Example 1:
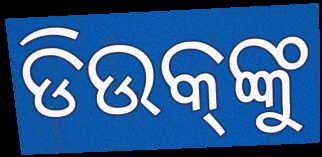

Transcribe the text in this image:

ଡିଉକ୍‌ଙ୍କୁ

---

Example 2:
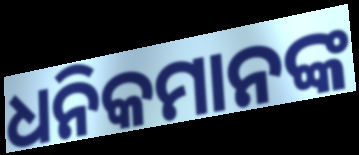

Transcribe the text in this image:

ଧନିକମାନଙ୍କ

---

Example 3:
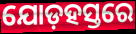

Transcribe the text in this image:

ଯୋଡ଼ହସ୍ତରେ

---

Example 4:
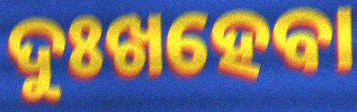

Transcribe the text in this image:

ଦୁଃଖହେବା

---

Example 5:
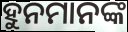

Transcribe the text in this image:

ହୁନମାନଙ୍କ